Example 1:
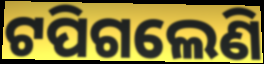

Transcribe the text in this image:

ଟପିଗଲେଣି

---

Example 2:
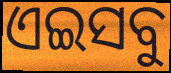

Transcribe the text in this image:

ଏଇସବୁ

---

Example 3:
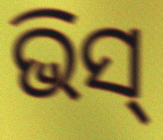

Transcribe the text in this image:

ଭିସ୍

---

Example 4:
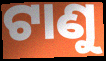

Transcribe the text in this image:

ଟାଣୁ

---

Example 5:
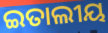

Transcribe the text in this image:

ଇତାଲୀୟ